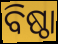
ବିଷ୍ଠା